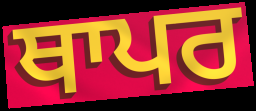
ਥਾਪਰ